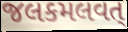
જલકમલવત્